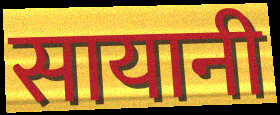
सायानी